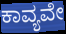
ಕಾವ್ಯವೇ